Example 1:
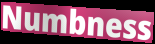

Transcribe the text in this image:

Numbness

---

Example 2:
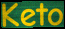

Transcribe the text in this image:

Keto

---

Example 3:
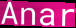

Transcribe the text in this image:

Anar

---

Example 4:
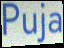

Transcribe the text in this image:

Puja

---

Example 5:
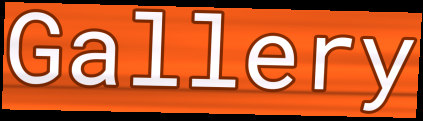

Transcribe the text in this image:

Gallery